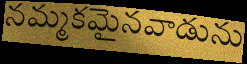
నమ్మకమైనవాడును